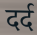
दर्द